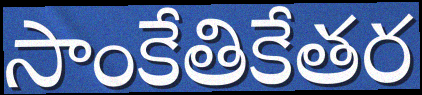
సాంకేతికేతర